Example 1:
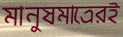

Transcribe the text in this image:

মানুষমাত্রেরই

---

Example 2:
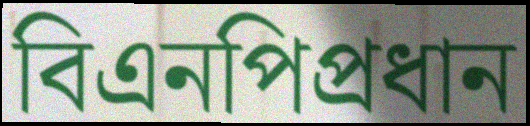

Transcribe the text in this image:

বিএনপিপ্রধান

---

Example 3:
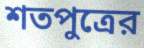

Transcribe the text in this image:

শতপুত্রের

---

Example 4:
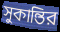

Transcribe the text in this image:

সুকান্তির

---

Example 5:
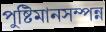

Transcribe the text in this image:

পুষ্টিমানসম্পন্ন